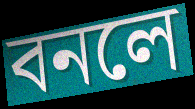
বনলে